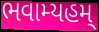
ભવામ્યહમ્